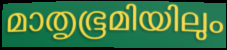
മാതൃഭൂമിയിലും